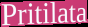
Pritilata